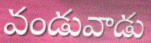
వండువాడు